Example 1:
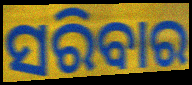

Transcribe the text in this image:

ସରିବାର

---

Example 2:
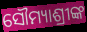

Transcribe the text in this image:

ସୌମ୍ୟାଶ୍ରୀଙ୍କ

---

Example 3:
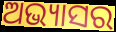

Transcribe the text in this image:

ଅଭ୍ୟାସର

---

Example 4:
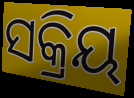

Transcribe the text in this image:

ସକ୍ରିୟ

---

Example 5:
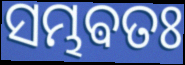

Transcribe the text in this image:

ସମ୍ଭଵତଃ